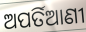
ଅପର୍ତିଆଣୀ